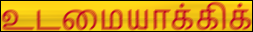
உடமையாக்கிக்